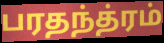
பரதந்த்ரம்